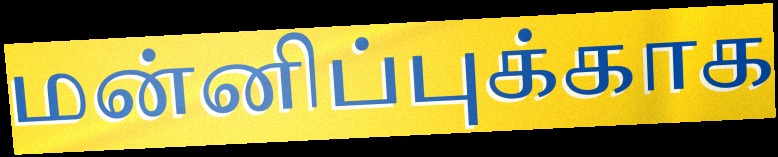
மன்னிப்புக்காக